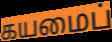
கயமைப்